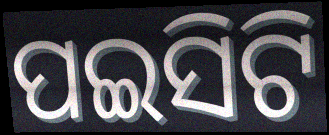
ପଇସିଟି